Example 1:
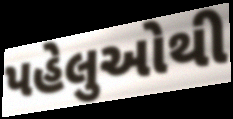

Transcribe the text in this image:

પહેલુઓથી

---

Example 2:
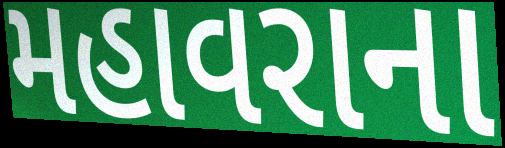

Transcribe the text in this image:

મહાવરાના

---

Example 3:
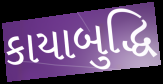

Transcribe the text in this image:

કાયાબુદ્ધિ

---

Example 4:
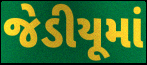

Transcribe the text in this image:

જેડીયૂમાં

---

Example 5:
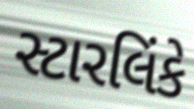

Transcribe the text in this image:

સ્ટારલિંકે